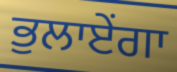
ਭੁਲਾਏਂਗਾ